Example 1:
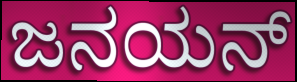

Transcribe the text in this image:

ಜನಯನ್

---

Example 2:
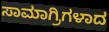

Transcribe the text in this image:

ಸಾಮಾಗ್ರಿಗಳಾದ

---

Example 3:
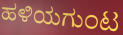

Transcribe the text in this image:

ಹಳಿಯಗುಂಟ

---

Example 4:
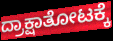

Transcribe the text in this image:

ದ್ರಾಕ್ಷಾತೋಟಕ್ಕೆ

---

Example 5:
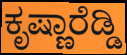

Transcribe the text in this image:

ಕೃಷ್ಣಾರೆಡ್ಡಿ